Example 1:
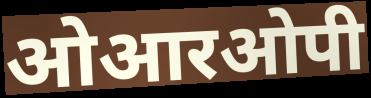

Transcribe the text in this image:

ओआरओपी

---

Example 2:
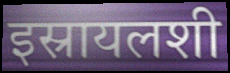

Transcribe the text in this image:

इस्रायलशी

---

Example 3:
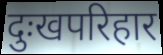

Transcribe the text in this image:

दुःखपरिहार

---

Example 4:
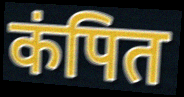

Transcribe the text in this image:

कंपित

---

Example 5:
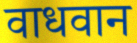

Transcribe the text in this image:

वाधवान